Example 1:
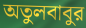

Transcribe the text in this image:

অতুলবাবুর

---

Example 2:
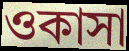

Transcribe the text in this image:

ওকাসা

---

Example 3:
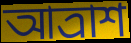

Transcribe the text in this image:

আত্রাশ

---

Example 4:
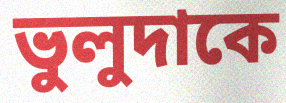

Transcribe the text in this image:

ভুলুদাকে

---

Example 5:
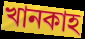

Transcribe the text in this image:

খানকাহ